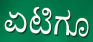
ಏಟಿಗೂ